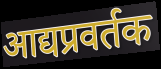
आद्यप्रवर्तक